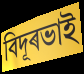
বিদূৰভাই